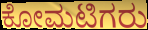
ಕೋಮಟಿಗರು